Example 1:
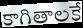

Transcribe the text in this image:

కాగితాలకే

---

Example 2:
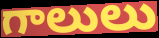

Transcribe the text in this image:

గాలులు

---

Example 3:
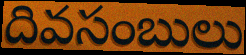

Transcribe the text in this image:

దివసంబులు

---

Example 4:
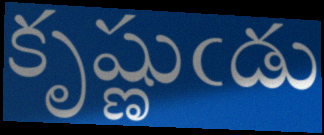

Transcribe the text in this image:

కృష్ణుఁడు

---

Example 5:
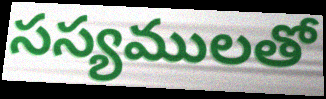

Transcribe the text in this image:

సస్యములతో